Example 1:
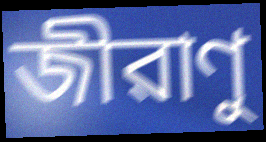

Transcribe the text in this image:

জীৱাণু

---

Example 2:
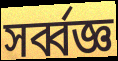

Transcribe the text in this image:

সৰ্ব্বজ্ঞ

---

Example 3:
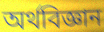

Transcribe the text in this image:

অৰ্থবিজ্ঞান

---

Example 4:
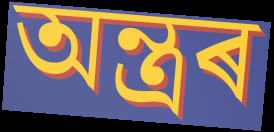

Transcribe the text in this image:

অন্ত্ৰৰ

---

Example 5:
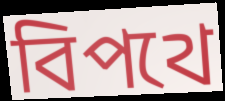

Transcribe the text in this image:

বিপথে